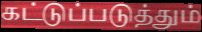
கட்டுப்படுத்தும்